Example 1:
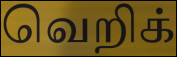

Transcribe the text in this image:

வெறிக்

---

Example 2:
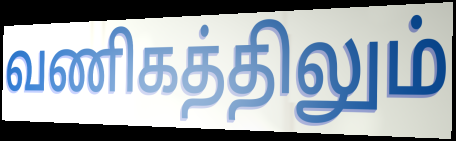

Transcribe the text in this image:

வணிகத்திலும்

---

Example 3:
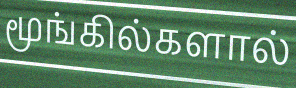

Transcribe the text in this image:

மூங்கில்களால்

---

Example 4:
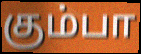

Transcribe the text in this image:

கும்பா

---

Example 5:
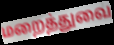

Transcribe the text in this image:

மறைத்துவை